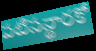
పటిసన్థారకో